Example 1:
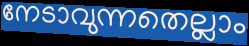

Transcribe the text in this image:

നേടാവുന്നതെല്ലാം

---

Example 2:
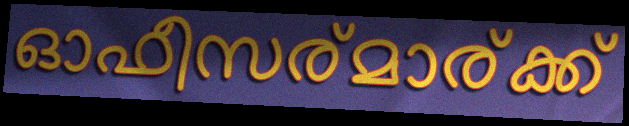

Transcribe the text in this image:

ഓഫീസര്മാര്ക്ക്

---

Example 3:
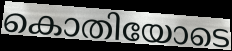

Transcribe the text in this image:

കൊതിയോടെ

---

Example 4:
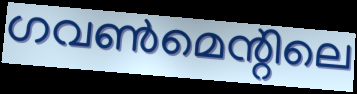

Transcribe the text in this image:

ഗവൺമെന്റിലെ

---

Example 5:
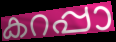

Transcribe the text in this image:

കറപ്പാ